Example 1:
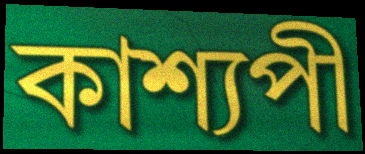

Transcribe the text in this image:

কাশ্যপী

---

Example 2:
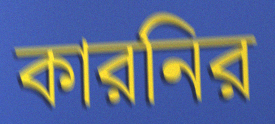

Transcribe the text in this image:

কারনির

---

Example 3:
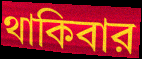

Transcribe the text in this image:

থাকিবার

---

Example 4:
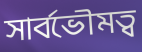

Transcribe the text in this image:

সার্বভৌমত্ব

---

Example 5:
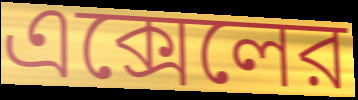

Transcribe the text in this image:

এক্সেলের